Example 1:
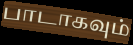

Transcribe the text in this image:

பாடாகவும்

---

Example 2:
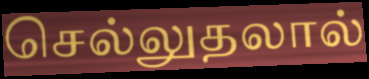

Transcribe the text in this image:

செல்லுதலால்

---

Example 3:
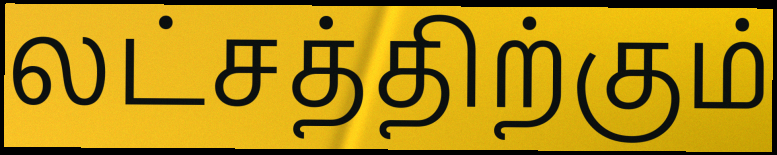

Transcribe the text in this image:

லட்சத்திற்கும்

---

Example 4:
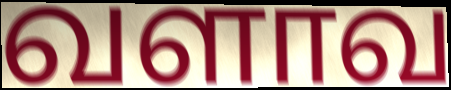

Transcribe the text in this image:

வளாவ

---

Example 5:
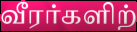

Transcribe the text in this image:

வீரர்களிற்